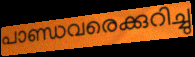
പാണ്ഡവരെക്കുറിച്ചു